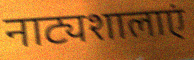
नाट्यशालाएं